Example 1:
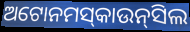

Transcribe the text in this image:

ଅଟୋନମସ୍‌କାଉନ୍‌ସିଲ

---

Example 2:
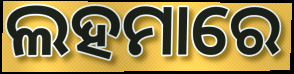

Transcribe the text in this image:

ଲହମାରେ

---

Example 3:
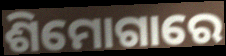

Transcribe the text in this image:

ଶିମୋଗାରେ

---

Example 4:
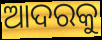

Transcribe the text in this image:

ଆଦରକୁ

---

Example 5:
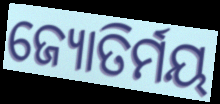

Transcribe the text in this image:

ଜ୍ୟୋତିର୍ମୟ